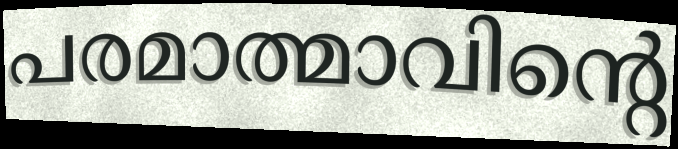
പരമാത്മാവിന്റെ